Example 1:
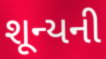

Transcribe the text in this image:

શૂન્યની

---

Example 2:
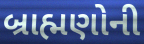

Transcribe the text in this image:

બ્રાહ્મણોની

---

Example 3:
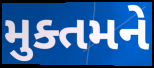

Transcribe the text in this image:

મુક્તમને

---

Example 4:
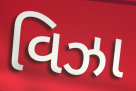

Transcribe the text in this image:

વિઝા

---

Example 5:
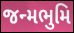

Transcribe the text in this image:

જન્મભુમિ